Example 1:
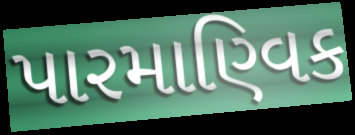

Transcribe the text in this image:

પારમાણ્વિક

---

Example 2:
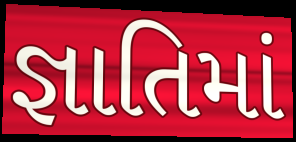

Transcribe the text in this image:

જ્ઞાતિમાં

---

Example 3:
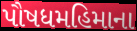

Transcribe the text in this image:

પૌષધમહિમાના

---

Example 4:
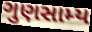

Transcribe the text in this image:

ગુણસામ્ય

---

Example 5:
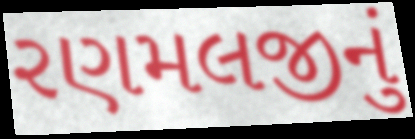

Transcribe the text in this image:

રણમલજીનું